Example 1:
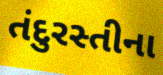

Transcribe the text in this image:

તંદુરસ્તીના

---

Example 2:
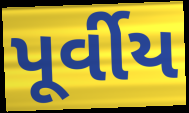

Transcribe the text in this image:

પૂર્વીય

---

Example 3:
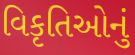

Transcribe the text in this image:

વિકૃતિઓનું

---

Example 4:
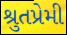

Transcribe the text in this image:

શ્રુતપ્રેમી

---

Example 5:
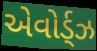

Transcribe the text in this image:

એવોર્ડ્ઝ